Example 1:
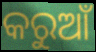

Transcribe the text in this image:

କରୁଆଁ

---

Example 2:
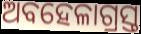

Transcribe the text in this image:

ଅବହେଳାଗ୍ରସ୍ତ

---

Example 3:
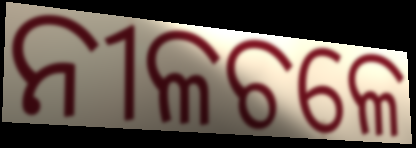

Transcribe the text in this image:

ନୀଳଚଳେ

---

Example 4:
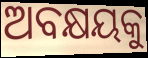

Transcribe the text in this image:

ଅବକ୍ଷୟକୁ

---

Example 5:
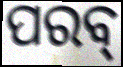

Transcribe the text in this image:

ପରବ୍